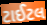
ટાઈટલ